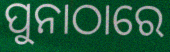
ପୁନାଠାରେ